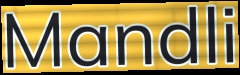
Mandli